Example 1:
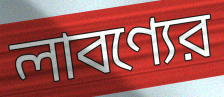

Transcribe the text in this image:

লাবণ্যের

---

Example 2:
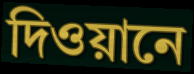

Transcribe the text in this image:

দিওয়ানে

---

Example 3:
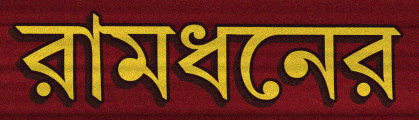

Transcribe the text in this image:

রামধনের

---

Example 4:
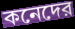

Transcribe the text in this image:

কনেদের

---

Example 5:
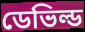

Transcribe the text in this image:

ডেভিল্ড